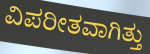
ವಿಪರೀತವಾಗಿತ್ತು